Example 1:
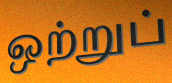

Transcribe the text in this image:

ஒற்றுப்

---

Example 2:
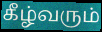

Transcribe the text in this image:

கீழ்வரும்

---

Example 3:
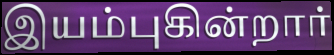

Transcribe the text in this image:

இயம்புகின்றார்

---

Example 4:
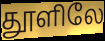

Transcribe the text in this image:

தூளிலே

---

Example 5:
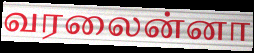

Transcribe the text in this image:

வரலைன்னா